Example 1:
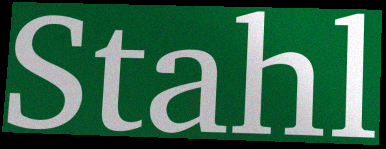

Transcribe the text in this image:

Stahl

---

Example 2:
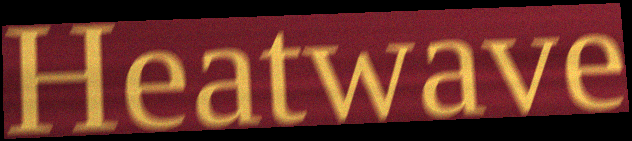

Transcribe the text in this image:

Heatwave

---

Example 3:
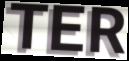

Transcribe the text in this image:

TER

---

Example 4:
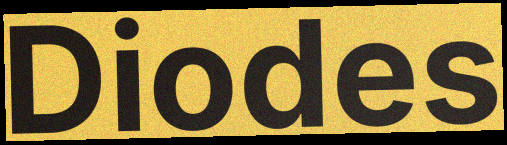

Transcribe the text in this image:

Diodes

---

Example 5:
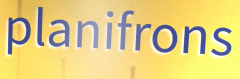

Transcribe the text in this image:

planifrons